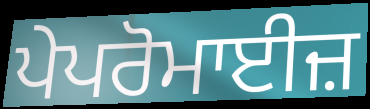
ਪੇਪਰੋਮਾਈਜ਼